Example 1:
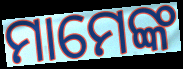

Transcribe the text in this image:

ମାମେଙ୍କ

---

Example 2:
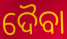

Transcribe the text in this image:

ଦୈବା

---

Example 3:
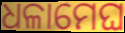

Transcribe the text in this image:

ଧଳାମେଘ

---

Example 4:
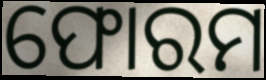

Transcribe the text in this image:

ଫୋରମ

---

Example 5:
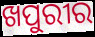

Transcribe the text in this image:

ଖପୁରୀର